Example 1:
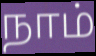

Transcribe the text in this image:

நாம்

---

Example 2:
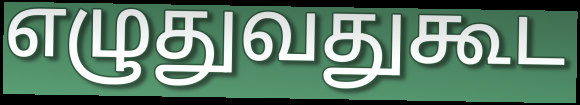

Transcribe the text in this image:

எழுதுவதுகூட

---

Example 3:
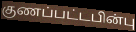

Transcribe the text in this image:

குணப்பட்டபின்பு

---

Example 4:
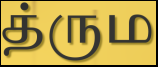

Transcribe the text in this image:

த்ரும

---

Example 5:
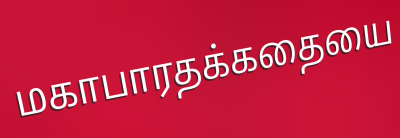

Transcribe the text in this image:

மகாபாரதக்கதையை